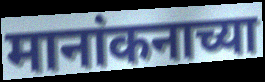
मानांकनाच्या